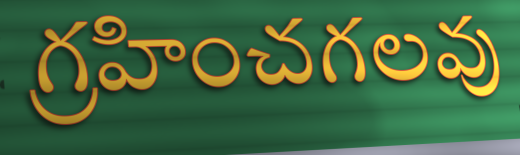
గ్రహించగలవు